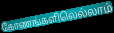
கோணங்களிலெல்லாம்